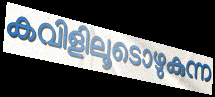
കവിളിലൂടൊഴുകുന്ന